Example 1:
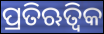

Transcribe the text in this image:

ପ୍ରତିଋତ୍ୱିକ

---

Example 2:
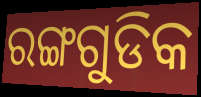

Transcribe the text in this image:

ରଙ୍ଗଗୁଡିକ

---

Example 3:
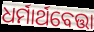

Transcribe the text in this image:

ଧର୍ମାର୍ଥବେତ୍ତା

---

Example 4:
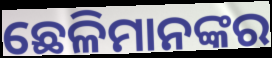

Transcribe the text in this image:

ଛେଳିମାନଙ୍କର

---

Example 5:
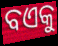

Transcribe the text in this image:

ବଏକୁ